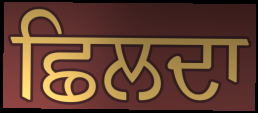
ਛਿਲਦਾ